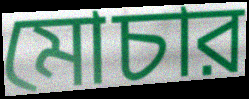
মোচার